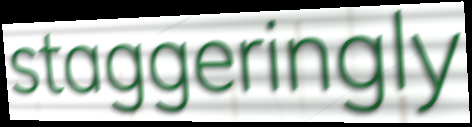
staggeringly